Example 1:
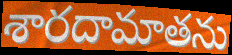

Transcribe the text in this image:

శారదామాతను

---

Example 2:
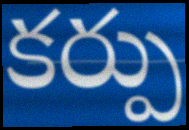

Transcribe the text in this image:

కర్పు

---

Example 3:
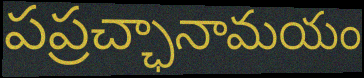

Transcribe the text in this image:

పప్రచ్ఛానామయం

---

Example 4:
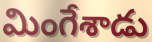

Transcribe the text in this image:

మింగేశాడు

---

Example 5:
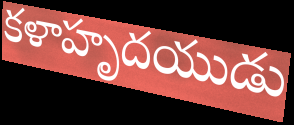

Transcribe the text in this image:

కళాహృదయుడు